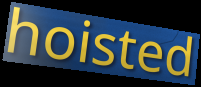
hoisted